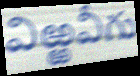
విఱ్ఱవీగు